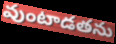
వుంటాడతను